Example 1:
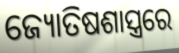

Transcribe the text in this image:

ଜ୍ୟୋତିଷଶାସ୍ତ୍ରରେ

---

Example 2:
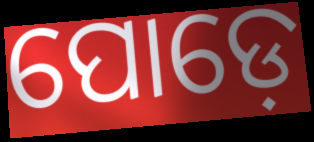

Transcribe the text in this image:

ପୋଡ଼େ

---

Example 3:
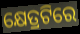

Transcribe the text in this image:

କ୍ଷେତ୍ରଟିରେ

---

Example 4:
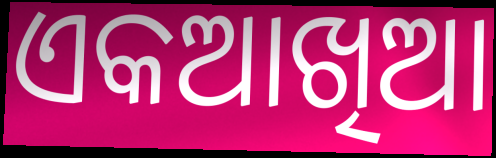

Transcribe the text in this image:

ଏକଆଖିଆ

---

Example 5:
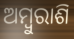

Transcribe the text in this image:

ଅମ୍ୱୁରାଶି